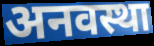
अनवस्था